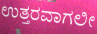
ಉತ್ತರವಾಗಲೀ